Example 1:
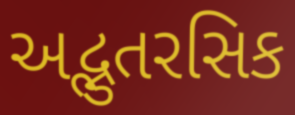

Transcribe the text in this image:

અદ્ભુતરસિક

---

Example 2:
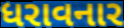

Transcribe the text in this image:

ધરાવનાર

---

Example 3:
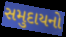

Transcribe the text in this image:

સમુદાયનો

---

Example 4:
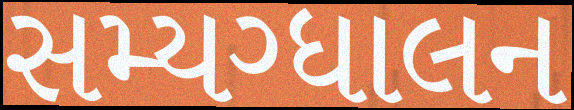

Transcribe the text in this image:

સમ્યગ્ધાલન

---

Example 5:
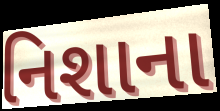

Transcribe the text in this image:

નિશાના